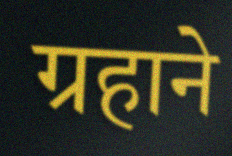
ग्रहाने